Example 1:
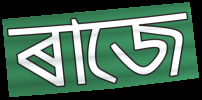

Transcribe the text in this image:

ৰাজে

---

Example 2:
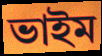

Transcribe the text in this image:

ভাইম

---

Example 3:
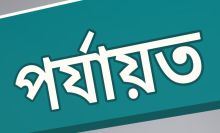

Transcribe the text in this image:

পৰ্যায়ত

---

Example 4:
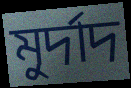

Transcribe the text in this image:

মুৰ্দাদ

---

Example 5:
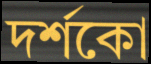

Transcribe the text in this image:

দৰ্শকো